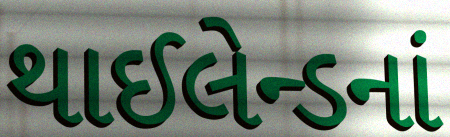
થાઈલેન્ડનાં